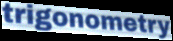
trigonometry